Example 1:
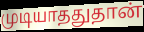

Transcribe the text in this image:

முடியாததுதான்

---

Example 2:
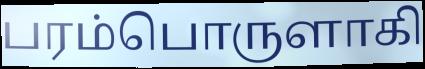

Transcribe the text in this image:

பரம்பொருளாகி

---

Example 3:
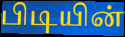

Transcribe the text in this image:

பிடியின்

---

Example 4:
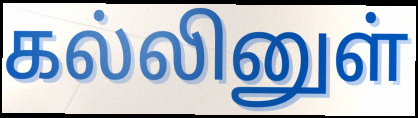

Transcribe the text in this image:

கல்லினுள்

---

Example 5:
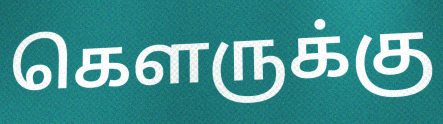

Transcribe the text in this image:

கௌருக்கு